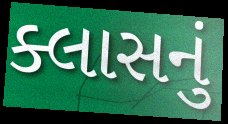
ક્લાસનું